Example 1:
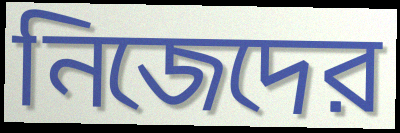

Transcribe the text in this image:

নিজেদের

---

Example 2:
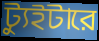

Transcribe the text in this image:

ট্যুইটারে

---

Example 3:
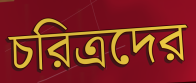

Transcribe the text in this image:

চরিত্রদের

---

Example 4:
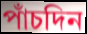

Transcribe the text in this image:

পাঁচদিন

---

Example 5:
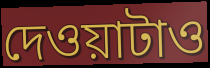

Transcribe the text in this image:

দেওয়াটাও